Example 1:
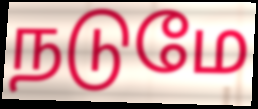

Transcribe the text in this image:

நடுமே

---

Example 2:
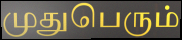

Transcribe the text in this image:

முதுபெரும்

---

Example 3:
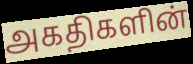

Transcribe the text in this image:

அகதிகளின்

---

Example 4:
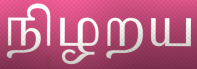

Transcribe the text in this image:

நிழறய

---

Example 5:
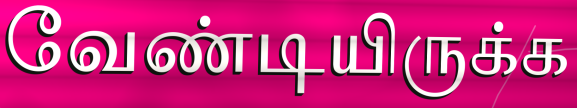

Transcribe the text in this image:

வேண்டியிருக்க